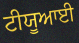
ਟੀਯੂਆਈ